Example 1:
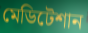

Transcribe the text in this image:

মেডিটেশান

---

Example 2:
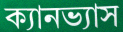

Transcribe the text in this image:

ক্যানভ্যাস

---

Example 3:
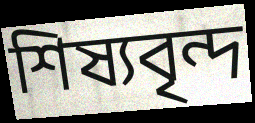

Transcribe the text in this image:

শিষ্যবৃন্দ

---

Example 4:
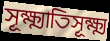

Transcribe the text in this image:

সূক্ষ্মাতিসূক্ষ্ম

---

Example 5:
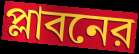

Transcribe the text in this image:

প্লাবনের